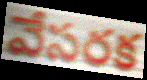
వేసరక